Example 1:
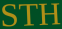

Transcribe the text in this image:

STH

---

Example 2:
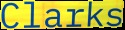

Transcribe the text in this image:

Clarks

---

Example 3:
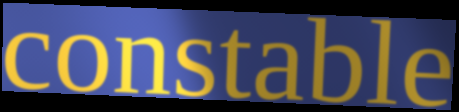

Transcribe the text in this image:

constable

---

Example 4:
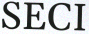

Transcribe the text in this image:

SECI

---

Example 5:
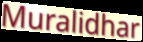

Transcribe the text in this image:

Muralidhar